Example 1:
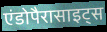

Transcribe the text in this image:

एंडोपैरासाइट्स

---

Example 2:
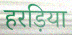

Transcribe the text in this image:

हरड़िया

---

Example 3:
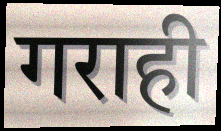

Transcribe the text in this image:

गराही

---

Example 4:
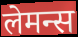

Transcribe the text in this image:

लेमन्स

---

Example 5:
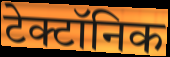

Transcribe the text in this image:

टेक्टॉनिक